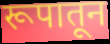
रूपातून